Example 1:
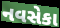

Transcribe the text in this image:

નવસેકા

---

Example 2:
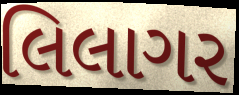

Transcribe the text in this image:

લિલાગર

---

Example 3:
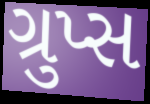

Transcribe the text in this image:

ગ્રુપ્સ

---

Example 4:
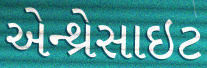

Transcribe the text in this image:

એન્થ્રેસાઇટ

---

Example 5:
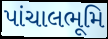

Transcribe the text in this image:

પાંચાલભૂમિ